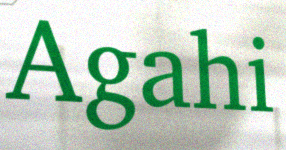
Agahi